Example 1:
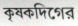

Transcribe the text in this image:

কৃষকদিগের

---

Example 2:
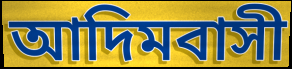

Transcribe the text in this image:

আদিমবাসী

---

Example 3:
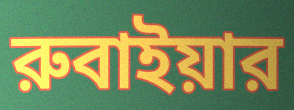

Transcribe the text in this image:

রুবাইয়ার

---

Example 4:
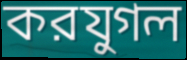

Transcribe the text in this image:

করযুগল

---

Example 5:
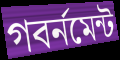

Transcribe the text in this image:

গবর্নমেন্ট